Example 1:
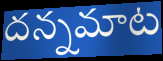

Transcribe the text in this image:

దన్నమాట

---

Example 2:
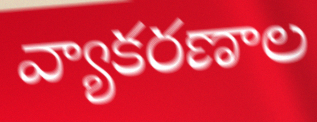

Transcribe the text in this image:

వ్యాకరణాల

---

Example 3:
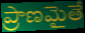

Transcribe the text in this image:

ప్రాణమైతే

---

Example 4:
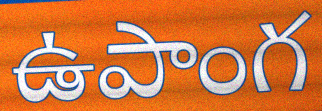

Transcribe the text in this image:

ఉపాంగ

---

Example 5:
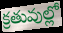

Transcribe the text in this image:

క్రతువుల్లో